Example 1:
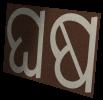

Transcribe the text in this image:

ଘଷ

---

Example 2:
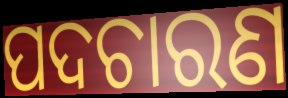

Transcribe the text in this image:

ପଦଚାରଣ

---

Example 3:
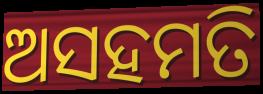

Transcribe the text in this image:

ଅସହମତି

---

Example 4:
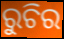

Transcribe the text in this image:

ରୁଚିର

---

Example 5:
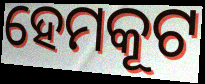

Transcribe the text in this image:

ହେମକୂଟ